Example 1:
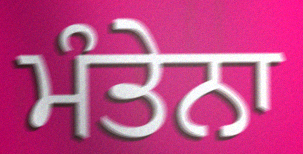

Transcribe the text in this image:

ਮੰਤੇਨਾ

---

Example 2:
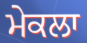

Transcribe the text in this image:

ਮੇਕਲਾ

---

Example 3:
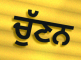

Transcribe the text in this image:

ਚੁੱਣਨ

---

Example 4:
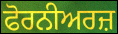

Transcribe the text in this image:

ਫੋਰਨੀਅਰਜ਼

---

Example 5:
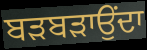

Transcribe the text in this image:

ਬੜਬੜਾਉਂਦਾ